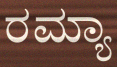
ರಮ್ಯಾ